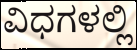
ವಿಧಗಳಲ್ಲಿ